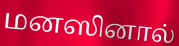
மனஸினால்